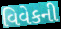
વિવેકની